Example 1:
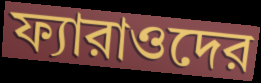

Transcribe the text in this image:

ফ্যারাওদের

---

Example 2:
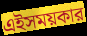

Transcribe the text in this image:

এইসময়কার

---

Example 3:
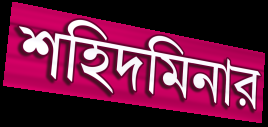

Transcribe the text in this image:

শহিদমিনার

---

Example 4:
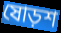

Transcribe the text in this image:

ষোড়শ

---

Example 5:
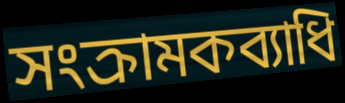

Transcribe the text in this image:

সংক্রামকব্যাধি